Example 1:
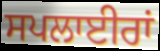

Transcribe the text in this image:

ਸਪਲਾਈਰਾਂ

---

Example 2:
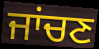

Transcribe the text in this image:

ਜਾਂਚਣ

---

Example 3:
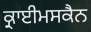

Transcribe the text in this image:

ਕ੍ਰਾਈਮਸਕੈਨ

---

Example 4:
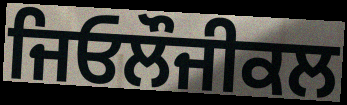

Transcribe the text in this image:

ਜਿਓਲੌਜੀਕਲ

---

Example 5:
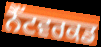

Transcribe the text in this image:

ਨੈੱਟਵਰਕਡ